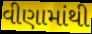
વીણામાંથી